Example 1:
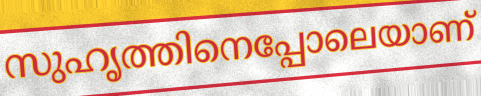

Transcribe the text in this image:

സുഹൃത്തിനെപ്പോലെയാണ്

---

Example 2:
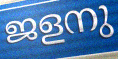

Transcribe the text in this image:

ജളനു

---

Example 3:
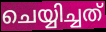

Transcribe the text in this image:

ചെയ്യിച്ചത്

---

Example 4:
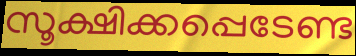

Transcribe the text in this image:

സൂക്ഷിക്കപ്പെടേണ്ട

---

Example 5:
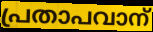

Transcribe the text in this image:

പ്രതാപവാന്